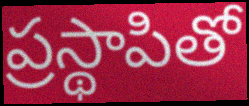
ప్రస్థాపితో